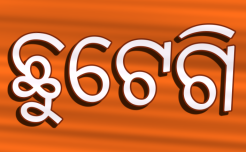
ଛୁଟେଗି